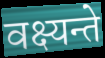
वक्ष्यन्ते